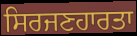
ਸਿਰਜਣਹਾਰਤਾ